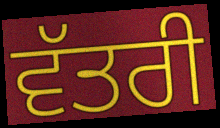
ਵੱਤਰੀ